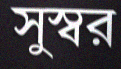
সুস্বর